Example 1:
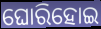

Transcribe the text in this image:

ଘୋରିହୋଇ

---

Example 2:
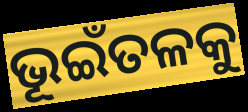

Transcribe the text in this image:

ଭୂଇଁତଳକୁ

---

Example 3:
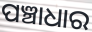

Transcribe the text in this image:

ପଞ୍ଚାଧାର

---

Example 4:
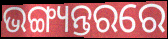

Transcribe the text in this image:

ଭଙ୍ଗ୍ୟନ୍ତରରେ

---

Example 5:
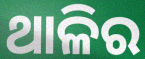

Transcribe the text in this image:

ଥାଳିର